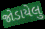
જોડાયેલુ